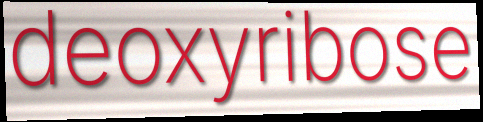
deoxyribose